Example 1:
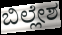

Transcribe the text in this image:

ಬಿಲ್ಲೇಶ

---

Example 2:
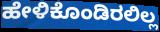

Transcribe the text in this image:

ಹೇಳಿಕೊಂಡಿರಲಿಲ್ಲ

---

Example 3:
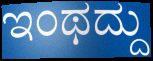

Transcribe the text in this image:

ಇಂಥದ್ದು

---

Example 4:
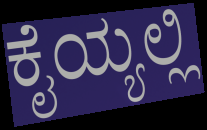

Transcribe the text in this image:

ಕೈಯ್ಯಲ್ಲಿ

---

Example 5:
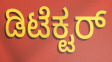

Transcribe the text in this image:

ಡಿಟೆಕ್ಟರ್